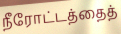
நீரோட்டத்தைத்